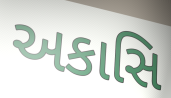
અકાસિ